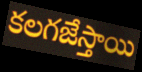
కలగజేస్తాయి